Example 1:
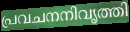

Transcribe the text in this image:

പ്രവചനനിവൃത്തി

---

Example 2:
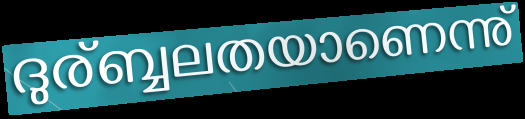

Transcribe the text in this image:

ദുര്ബ്ബലതയാണെന്നു്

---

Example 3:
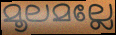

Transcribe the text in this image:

മൂലമല്ലേ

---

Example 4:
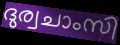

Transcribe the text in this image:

ദുര്വചാംസി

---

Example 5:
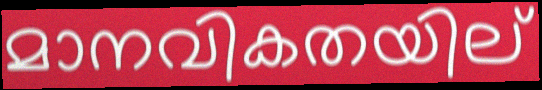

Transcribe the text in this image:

മാനവികതയില്